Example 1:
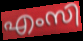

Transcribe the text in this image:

എംസി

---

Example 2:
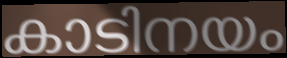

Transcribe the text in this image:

കാടിനയം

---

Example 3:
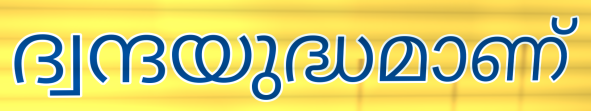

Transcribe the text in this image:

ദ്വന്ദയുദ്ധമാണ്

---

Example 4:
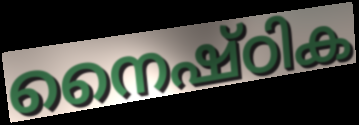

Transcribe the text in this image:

നൈഷ്ഠിക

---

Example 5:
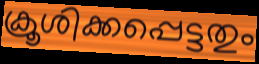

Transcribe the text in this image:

ക്രൂശിക്കപ്പെട്ടതും